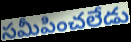
సమీపించలేడు